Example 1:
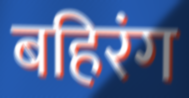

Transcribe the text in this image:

बहिरंग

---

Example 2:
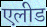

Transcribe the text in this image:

एलीड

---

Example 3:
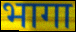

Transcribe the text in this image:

भागा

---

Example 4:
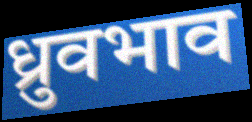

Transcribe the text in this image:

ध्रुवभाव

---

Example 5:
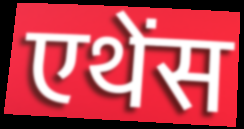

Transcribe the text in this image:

एथेंस